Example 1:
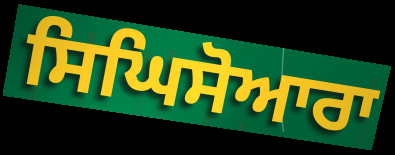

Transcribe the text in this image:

ਸਿਘਿਸੋਆਰਾ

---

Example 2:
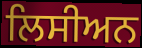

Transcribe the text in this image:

ਲਿਸੀਅਨ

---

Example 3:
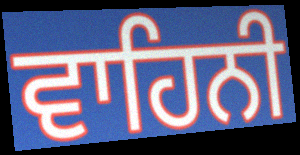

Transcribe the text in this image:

ਵਾਹਿਨੀ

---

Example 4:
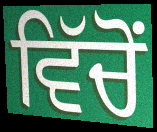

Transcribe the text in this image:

ਵਿੱਚੋੰ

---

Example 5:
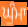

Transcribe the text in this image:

ਘੁੰਮਾ